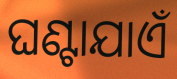
ଘଣ୍ଟାଯାଏଁ